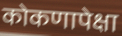
कोकणापेक्षा